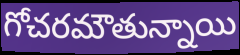
గోచరమౌతున్నాయి